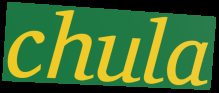
chula